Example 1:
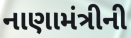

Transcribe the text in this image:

નાણામંત્રીની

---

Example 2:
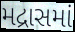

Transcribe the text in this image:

મદ્રાસમાં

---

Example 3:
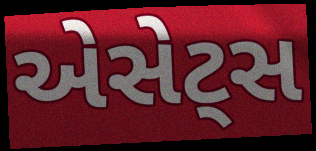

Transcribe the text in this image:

એસેટ્સ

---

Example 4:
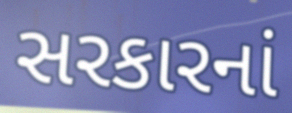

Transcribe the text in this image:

સરકારનાં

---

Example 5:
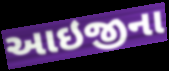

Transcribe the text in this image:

આઇજીના